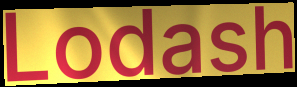
Lodash